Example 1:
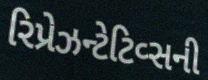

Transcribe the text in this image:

રિપ્રેઝન્ટેટિવ્સની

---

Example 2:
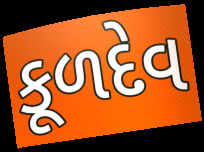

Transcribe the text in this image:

કૂળદેવ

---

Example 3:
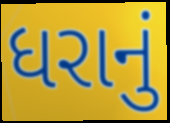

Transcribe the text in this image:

ધરાનું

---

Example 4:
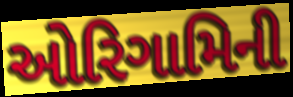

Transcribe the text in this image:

ઓરિગામિની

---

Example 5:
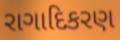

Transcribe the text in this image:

રાગાદિકરણ